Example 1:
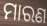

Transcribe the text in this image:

ମାରଣ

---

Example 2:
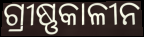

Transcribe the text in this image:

ଗ୍ରୀଷ୍ଣକାଳୀନ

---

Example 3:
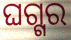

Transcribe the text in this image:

ଘଗ୍ଗର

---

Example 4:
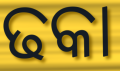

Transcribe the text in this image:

ଢକା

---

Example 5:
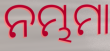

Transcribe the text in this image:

ନମ୍ଭମା